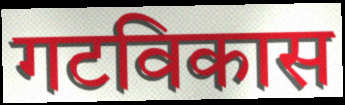
गटविकास